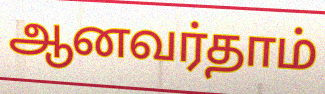
ஆனவர்தாம்